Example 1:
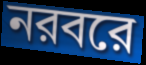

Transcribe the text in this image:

নরবরে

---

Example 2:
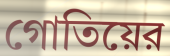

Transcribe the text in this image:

গোতিয়ের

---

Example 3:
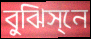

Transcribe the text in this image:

বুঝিস্‌নে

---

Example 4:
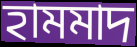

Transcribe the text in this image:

হামমাদ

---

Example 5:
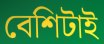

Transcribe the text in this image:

বেশিটাই